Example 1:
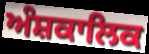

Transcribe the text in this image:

ਅੰਸ਼ਕਾਲਿਕ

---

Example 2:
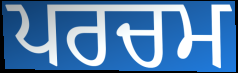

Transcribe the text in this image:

ਪਰਚਮ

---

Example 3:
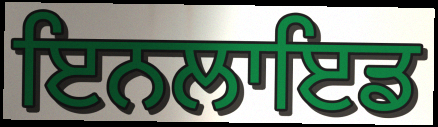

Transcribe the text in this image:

ਇਨਲਾਇਡ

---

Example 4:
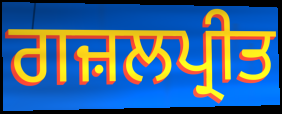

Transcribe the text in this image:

ਗਜ਼ਲਪ੍ਰੀਤ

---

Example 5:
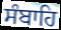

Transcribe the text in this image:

ਸੰਬਾਹਿ